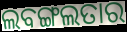
ଲବଙ୍ଗଲତାର